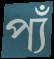
প্যঁ